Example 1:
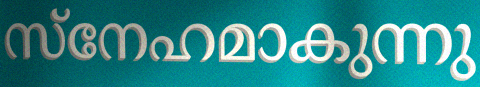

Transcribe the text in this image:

സ്നേഹമാകുന്നു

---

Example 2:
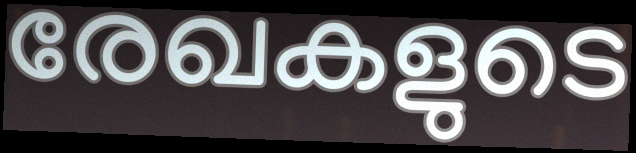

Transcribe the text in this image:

രേഖകളുടെ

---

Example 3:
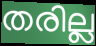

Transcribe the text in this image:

തരില്ല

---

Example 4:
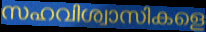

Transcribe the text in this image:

സഹവിശ്വാസികളെ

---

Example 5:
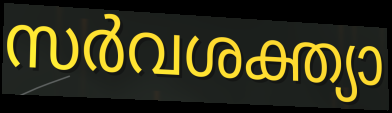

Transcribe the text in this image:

സർവശക്ത്യാ